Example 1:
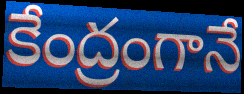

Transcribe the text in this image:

కేంద్రంగానే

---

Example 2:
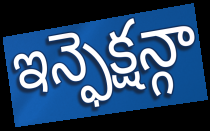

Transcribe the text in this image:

ఇన్ఫెక్షన్గా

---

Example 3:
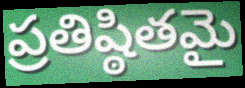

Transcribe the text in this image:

ప్రతిష్ఠితమై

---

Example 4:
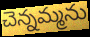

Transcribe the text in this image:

చెన్నమ్మను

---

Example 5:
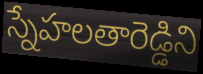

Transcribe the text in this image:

స్నేహలతారెడ్డిని